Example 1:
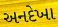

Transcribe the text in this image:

અનદેખા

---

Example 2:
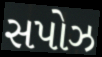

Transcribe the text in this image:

સપોઝ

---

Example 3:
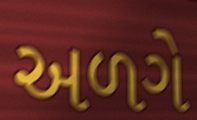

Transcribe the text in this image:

અળગે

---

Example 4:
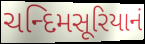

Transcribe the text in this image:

ચન્દિમસૂરિયાનં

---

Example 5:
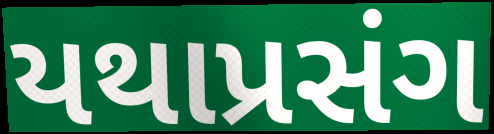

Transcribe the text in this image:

યથાપ્રસંગ